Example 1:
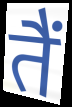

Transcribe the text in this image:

तैं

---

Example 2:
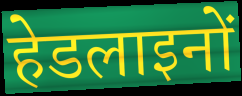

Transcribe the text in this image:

हेडलाइनों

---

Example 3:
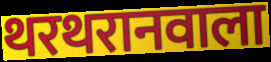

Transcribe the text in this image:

थरथरानवाला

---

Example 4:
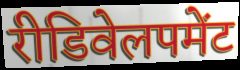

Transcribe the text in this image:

रीडिवेलपमेंट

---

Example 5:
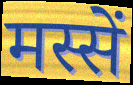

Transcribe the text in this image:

मस्सें